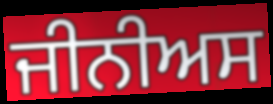
ਜੀਨੀਅਸ